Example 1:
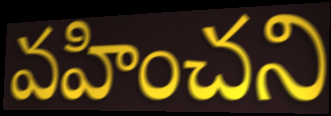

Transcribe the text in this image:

వహించని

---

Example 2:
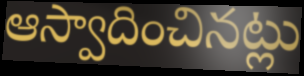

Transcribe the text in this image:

ఆస్వాదించినట్లు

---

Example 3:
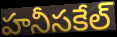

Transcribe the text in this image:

హనీసకేల్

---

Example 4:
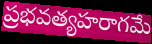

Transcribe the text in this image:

ప్రభవత్యహరాగమే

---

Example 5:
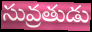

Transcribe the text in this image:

సువ్రతుడు